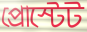
প্রোস্টেট